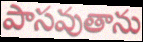
పాసవుతాను